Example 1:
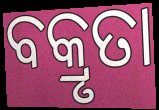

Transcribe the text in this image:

ବକ୍ରୃତା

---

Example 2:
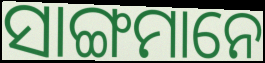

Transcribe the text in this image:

ସାଙ୍ଗମାନେ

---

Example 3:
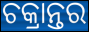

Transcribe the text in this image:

ଚକ୍ରାନ୍ତର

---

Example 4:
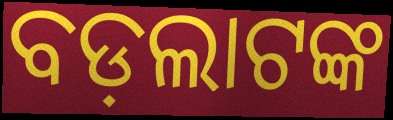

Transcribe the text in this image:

ବଡ଼ଲାଟଙ୍କ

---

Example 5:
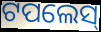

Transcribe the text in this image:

ଟପଲେସ୍